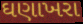
ઘણાખરા